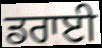
ਡਰਾਈ